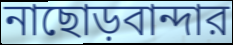
নাছোড়বান্দার